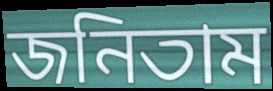
জনিতাম